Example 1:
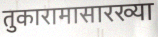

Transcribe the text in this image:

तुकारामासारख्या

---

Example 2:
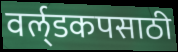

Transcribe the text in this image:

वर्ल्डकपसाठी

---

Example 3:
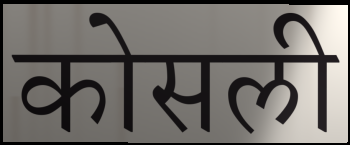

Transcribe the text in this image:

कोसली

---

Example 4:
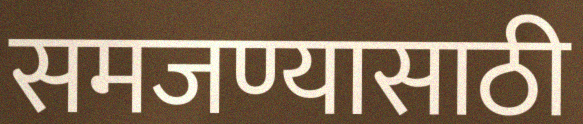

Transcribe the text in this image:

समजण्यासाठी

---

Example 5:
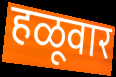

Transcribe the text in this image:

हळूवार